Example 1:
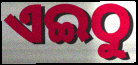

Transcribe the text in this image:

ଏଇଠୁ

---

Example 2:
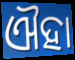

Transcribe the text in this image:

ଐହା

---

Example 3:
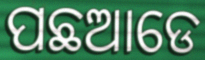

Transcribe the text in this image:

ପଛଆଡେ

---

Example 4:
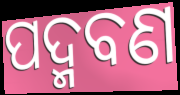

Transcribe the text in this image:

ପଦ୍ମବଣ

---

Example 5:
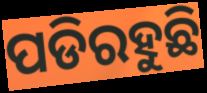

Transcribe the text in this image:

ପଡିରହୁଛି